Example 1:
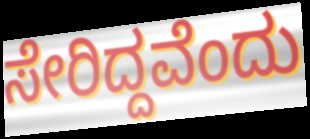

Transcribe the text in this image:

ಸೇರಿದ್ದವೆಂದು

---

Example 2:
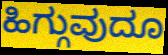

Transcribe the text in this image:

ಹಿಗ್ಗುವುದೂ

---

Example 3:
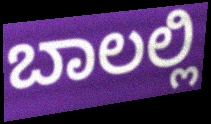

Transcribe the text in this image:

ಬಾಲಲ್ಲಿ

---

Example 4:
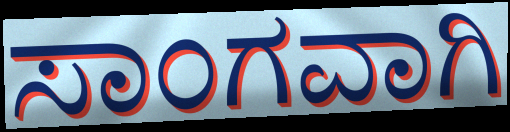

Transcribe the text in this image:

ಸಾಂಗವಾಗಿ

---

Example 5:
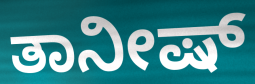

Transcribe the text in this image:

ತಾನೀಷ್